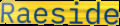
Raeside